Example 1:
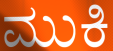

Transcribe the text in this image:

ಮುಕಿ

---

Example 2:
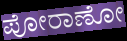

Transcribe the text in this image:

ಪೋರಾಣೋ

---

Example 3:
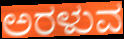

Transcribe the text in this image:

ಅರಳುವ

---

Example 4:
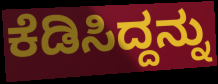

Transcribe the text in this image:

ಕೆಡಿಸಿದ್ದನ್ನು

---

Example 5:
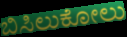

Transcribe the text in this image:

ಬಿಸಿಲುಕೋಲು